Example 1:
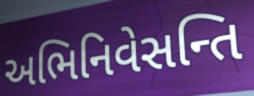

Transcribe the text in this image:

અભિનિવેસન્તિ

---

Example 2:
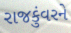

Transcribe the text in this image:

રાજકુંવરને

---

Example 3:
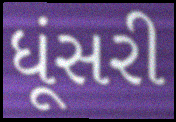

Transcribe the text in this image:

ધૂંસરી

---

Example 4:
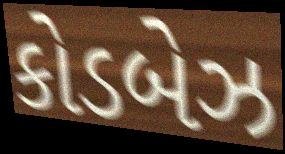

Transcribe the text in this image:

કોડબેઝ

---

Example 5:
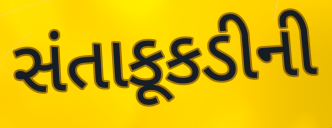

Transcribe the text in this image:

સંતાકૂકડીની